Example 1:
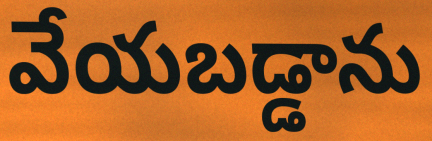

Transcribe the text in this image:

వేయబడ్డాను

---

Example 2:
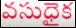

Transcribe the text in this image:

వసుధైక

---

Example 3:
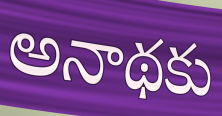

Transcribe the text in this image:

అనాథకు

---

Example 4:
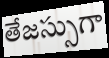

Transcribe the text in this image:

తేజస్సుగా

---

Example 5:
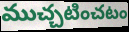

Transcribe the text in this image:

ముచ్చటించటం